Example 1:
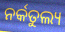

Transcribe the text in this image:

ନର୍କତୁଲ୍ୟ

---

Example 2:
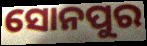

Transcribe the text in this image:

ସୋନପୁର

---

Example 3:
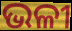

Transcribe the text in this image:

ଭଳୀ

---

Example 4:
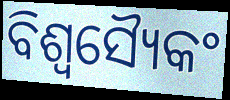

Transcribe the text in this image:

ବିଶ୍ୱସ୍ୟୈକଂ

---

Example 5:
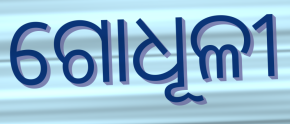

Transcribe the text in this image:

ଗୋଧୂଳୀ